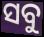
ସବୁ